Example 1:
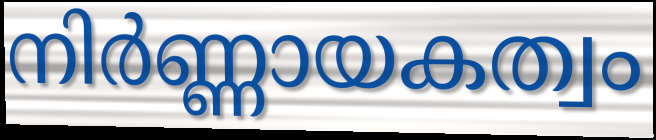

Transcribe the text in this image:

നിർണ്ണായകത്വം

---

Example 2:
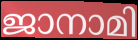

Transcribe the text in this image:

ജാനാമി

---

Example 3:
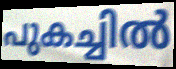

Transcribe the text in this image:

പുകച്ചിൽ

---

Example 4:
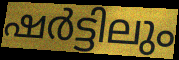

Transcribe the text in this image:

ഷർട്ടിലും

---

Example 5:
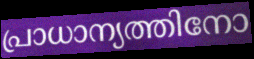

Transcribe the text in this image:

പ്രാധാന്യത്തിനോ